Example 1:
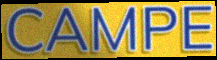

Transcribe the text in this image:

CAMPE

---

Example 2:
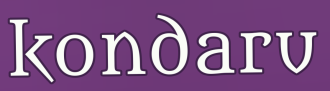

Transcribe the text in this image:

kondaru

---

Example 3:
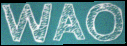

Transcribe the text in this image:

WAO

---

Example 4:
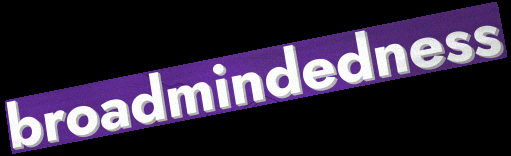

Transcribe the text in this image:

broadmindedness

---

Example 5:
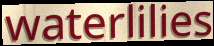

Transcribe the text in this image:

waterlilies